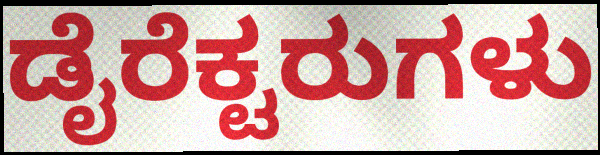
ಡೈರೆಕ್ಟರುಗಳು